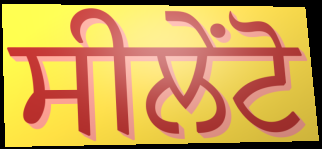
ਸੀਲੇਂਟੋ